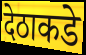
देठाकडे